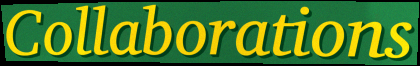
Collaborations